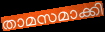
താമസമാക്കി